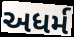
અધર્મ